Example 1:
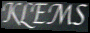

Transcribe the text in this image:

KLEMS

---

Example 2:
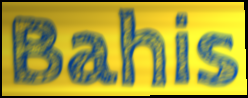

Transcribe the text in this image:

Bahis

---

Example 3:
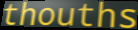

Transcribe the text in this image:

thouths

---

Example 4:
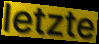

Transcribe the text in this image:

letzte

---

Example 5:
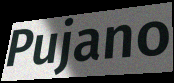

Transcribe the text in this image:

Pujano